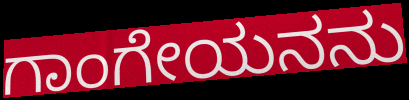
ಗಾಂಗೇಯನನು